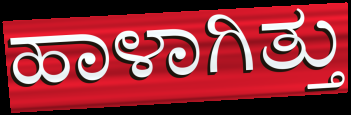
ಹಾಳಾಗಿತ್ತು